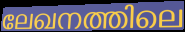
ലേഖനത്തിലെ